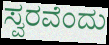
ಸ್ವರವೆಂದು